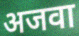
अजवा